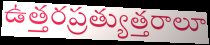
ఉత్తరప్రత్యుత్తరాలూ